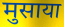
मुसाया